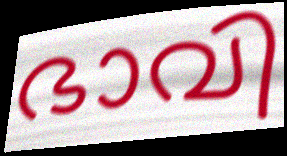
ഭാവി